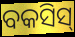
ବକସିସ୍